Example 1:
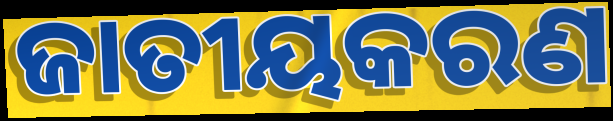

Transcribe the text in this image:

ଜାତୀୟକରଣ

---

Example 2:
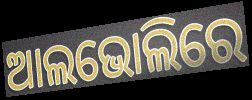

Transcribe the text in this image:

ଆଲଭୋଲିରେ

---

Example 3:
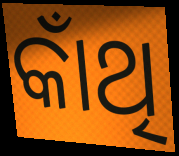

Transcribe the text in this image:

କାଁଥି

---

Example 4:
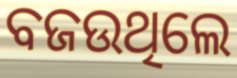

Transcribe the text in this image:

ବଜଉଥିଲେ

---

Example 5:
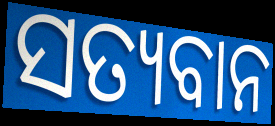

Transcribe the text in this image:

ସତ୍ୟବାନ